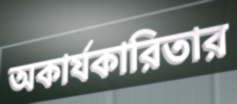
অকার্যকারিতার